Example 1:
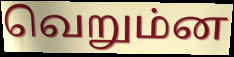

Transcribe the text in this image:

வெறும்ன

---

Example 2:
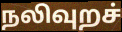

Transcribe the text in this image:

நலிவுறச்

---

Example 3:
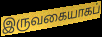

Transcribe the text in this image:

இருவகையாகப்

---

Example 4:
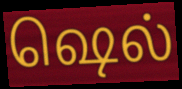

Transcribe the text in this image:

ஷெல்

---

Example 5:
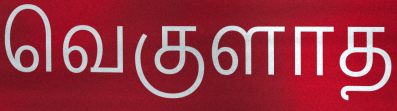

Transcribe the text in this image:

வெகுளாத